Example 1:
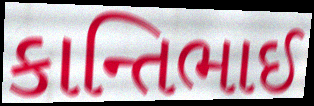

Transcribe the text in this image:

કાન્તિભાઈ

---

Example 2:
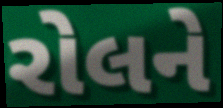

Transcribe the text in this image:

રોલને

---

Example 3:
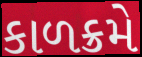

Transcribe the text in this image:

કાળક્રમે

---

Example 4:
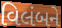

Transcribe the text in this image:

વિલંબને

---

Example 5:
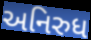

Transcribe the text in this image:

અનિરુધ